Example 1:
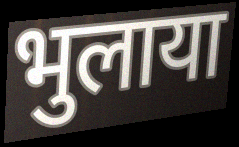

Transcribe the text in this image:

भुलाया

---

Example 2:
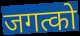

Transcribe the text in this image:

जगत्को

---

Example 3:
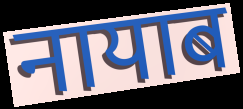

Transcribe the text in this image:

नायाब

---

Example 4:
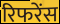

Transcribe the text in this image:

रिफरेंस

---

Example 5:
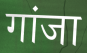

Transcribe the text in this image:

गांजा